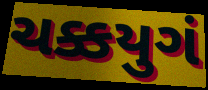
ચક્કયુગં